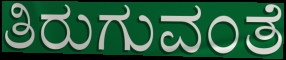
ತಿರುಗುವಂತೆ